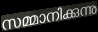
സമ്മാനിക്കുന്നു